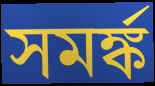
সমর্ঙ্ক